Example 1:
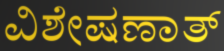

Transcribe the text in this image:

ವಿಶೇಷಣಾತ್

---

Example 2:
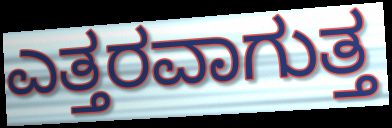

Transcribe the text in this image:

ಎತ್ತರವಾಗುತ್ತ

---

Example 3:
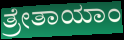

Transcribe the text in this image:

ತ್ರೇತಾಯಾಂ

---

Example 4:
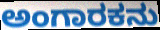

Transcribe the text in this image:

ಅಂಗಾರಕನು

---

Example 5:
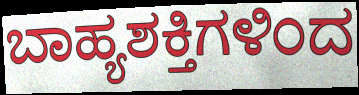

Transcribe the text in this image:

ಬಾಹ್ಯಶಕ್ತಿಗಳಿಂದ